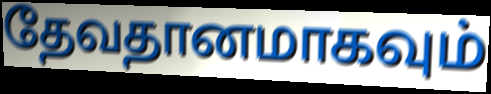
தேவதானமாகவும்